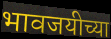
भावजयीच्या